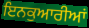
ਇਨਕੁਆਰੀਆਂ